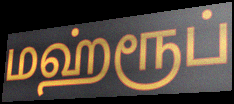
மஹ்ரூப்